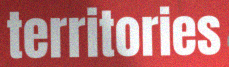
territories